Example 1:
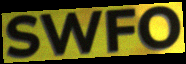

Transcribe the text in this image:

SWFO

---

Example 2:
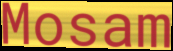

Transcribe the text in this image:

Mosam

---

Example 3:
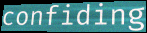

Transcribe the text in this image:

confiding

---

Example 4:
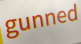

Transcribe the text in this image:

gunned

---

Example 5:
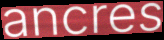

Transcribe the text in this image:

ancres